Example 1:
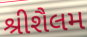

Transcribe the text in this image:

શ્રીશૈલમ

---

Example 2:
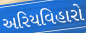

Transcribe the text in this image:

અરિયવિહારો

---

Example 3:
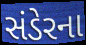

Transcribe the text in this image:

સંડેરના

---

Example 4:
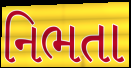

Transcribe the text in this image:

નિભતા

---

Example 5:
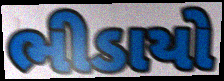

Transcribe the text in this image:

ભીડાયો